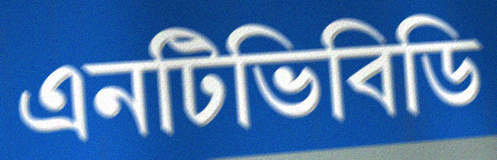
এনটিভিবিডি